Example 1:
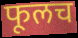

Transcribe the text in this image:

फूलच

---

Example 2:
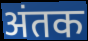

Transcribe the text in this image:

अंतक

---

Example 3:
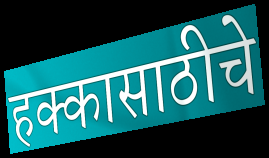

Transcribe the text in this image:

हक्कासाठीचे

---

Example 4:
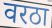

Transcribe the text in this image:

वरठा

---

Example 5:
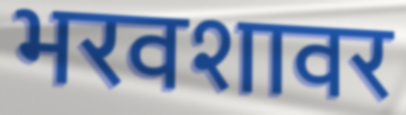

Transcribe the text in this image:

भरवशावर